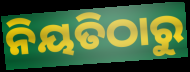
ନିୟତିଠାରୁ